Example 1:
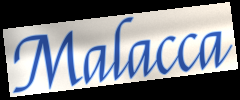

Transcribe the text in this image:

Malacca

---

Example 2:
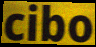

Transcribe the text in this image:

cibo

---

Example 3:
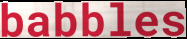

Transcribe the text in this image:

babbles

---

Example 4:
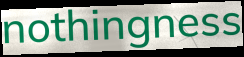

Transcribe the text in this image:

nothingness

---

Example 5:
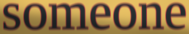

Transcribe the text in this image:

someone